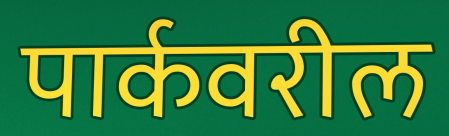
पार्कवरील